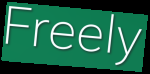
Freely